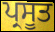
ਪ੍ਰਸੂਤ